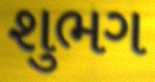
શુભગ